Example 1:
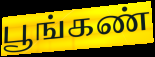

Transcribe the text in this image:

பூங்கண்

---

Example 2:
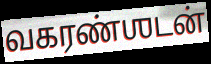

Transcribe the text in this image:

வகரண்ஶடன்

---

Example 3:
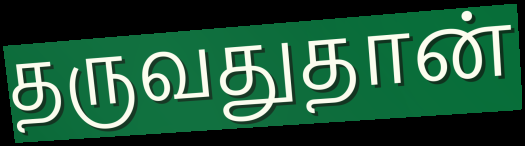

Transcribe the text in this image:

தருவதுதான்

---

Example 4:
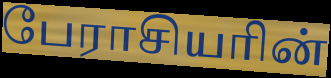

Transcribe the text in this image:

பேராசியரின்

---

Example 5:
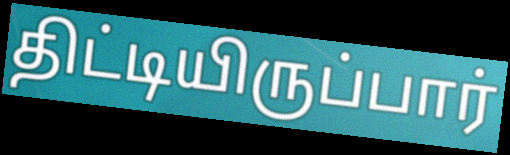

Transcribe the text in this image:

திட்டியிருப்பார்